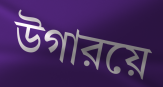
উগারয়ে